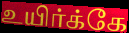
உயிர்க்கே